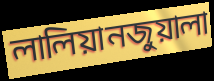
লালিয়ানজুয়ালা